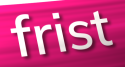
frist